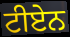
ਟੀਏਨ